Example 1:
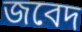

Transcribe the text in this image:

জবেদ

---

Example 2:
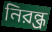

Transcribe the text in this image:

নিরন্ধ্র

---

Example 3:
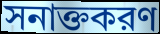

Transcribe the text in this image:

সনাক্তকরণ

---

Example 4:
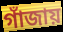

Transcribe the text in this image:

গাঁজায়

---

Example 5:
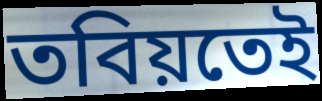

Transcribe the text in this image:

তবিয়তেই